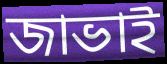
জাভাই